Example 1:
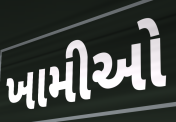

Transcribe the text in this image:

ખામીઓ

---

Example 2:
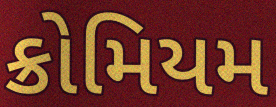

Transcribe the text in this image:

ક્રોમિયમ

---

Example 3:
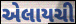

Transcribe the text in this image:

એલાયચી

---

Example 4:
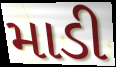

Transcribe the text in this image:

માડી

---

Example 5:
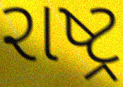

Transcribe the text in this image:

રાષ્ટ્ર